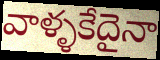
వాళ్ళకేదైనా